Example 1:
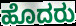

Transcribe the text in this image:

ಹೊದರು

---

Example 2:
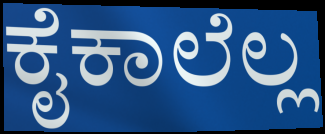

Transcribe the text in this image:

ಕೈಕಾಲೆಲ್ಲ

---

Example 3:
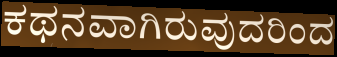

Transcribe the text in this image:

ಕಥನವಾಗಿರುವುದರಿಂದ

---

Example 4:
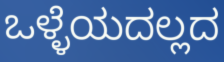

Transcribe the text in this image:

ಒಳ್ಳೆಯದಲ್ಲದ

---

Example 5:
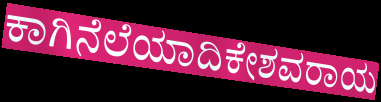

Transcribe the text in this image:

ಕಾಗಿನೆಲೆಯಾದಿಕೇಶವರಾಯ